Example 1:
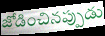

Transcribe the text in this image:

జోడించినప్పుడు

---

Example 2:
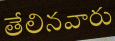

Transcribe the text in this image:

తేలినవారు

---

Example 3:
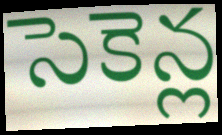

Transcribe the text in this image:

సెకెన్ల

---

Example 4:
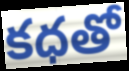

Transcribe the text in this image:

కధతో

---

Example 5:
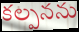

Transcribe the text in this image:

కల్పనను